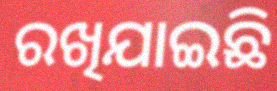
ରଖିଯାଇଛି